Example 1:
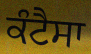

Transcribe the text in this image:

ਕੰਟੈਸਾ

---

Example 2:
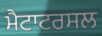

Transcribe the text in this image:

ਮੈਟਾਟਰਸਲ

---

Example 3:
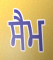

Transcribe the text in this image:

ਸੈਮ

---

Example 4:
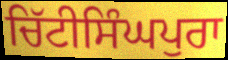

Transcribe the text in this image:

ਚਿੱਟੀਸਿੰਘਪੁਰਾ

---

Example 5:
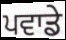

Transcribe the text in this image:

ਪਵਾਡੇ